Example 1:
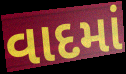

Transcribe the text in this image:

વાદમાં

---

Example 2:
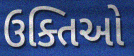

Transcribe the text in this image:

ઉક્તિઓ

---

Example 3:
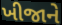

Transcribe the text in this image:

ખીજાને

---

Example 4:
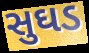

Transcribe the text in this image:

સુઘડ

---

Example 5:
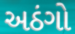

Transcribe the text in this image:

અઠંગો